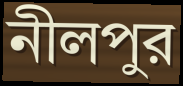
নীলপুর